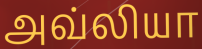
அவ்லியா